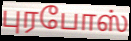
புரபோஸ்